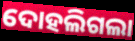
ଦୋହଲିଗଲା